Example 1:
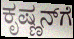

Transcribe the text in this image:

ಕೃಷ್ಣನ್‌ಗೆ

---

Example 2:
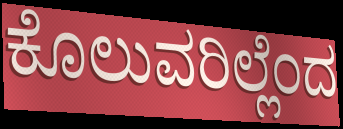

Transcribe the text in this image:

ಕೊಲುವರಿಲ್ಲೆಂದ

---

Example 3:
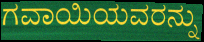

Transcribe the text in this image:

ಗವಾಯಿಯವರನ್ನು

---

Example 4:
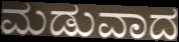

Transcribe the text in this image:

ಮಡುವಾದ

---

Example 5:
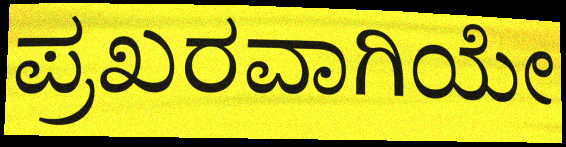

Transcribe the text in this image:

ಪ್ರಖರವಾಗಿಯೇ